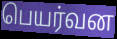
பெயர்வன